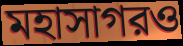
মহাসাগরও